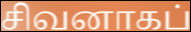
சிவனாகப்